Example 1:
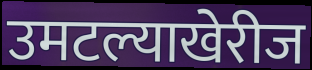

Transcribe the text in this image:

उमटल्याखेरीज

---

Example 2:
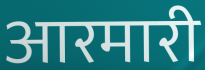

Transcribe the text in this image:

आरमारी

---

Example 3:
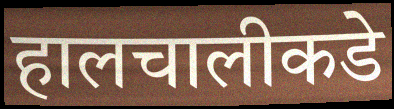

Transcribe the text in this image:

हालचालीकडे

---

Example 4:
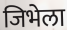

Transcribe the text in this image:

जिभेला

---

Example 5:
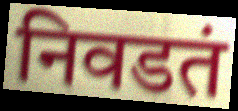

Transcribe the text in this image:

निवडतं